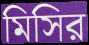
মিসির